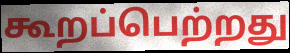
கூறப்பெற்றது